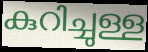
കുറിച്ചുള്ള